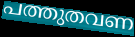
പത്തുതവണ